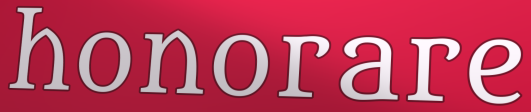
honorare